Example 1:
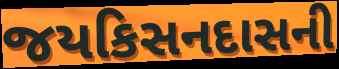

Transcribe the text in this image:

જયકિસનદાસની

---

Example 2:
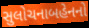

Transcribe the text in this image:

સુલોચનાબહેનનો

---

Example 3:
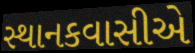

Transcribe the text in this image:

સ્થાનકવાસીએ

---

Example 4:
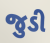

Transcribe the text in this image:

જુડી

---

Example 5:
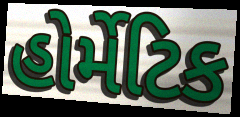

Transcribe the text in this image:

હોર્મેટિક